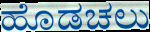
ಹೊಡಚಲು